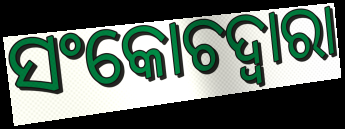
ସଂକୋଚଦ୍ୱାରା